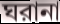
ঘরানা